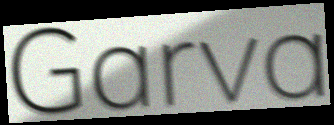
Garva